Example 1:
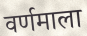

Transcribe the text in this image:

वर्णमाला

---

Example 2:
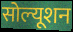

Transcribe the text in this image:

सोल्‍यूशन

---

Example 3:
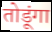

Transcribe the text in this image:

तोड़ूंगा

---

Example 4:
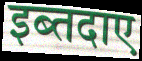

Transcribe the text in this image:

इब्तदाए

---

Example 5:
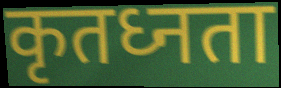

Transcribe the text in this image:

कृतध्नता